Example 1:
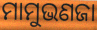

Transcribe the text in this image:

ମାମୁଭଣଜା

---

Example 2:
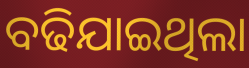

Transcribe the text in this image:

ବଢିଯାଇଥିଲା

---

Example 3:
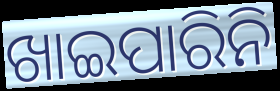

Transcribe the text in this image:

ଖାଇପାରିନି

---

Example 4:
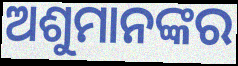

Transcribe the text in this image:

ଅଶୁମାନଙ୍କର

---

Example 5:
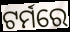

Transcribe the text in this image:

ଟର୍ମରେ